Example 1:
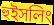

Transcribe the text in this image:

হুইসলিং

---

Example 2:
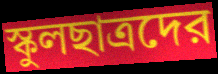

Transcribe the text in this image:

স্কুলছাত্রদের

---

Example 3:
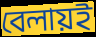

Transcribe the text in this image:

বেলায়ই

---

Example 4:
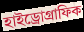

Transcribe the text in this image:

হাইড্রোগ্রাফিক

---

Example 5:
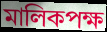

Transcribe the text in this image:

মালিকপক্ষ